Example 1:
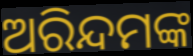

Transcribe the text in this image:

ଅରିନ୍ଦମଙ୍କ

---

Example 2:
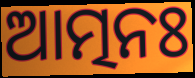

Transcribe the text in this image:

ଆତ୍ମନଃ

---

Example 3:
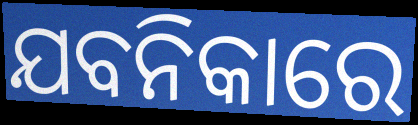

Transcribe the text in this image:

ଯବନିକାରେ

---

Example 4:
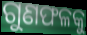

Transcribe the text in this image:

ଗୁଣଫଳକୁ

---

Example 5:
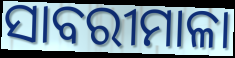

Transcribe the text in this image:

ସାବରୀମାଳା